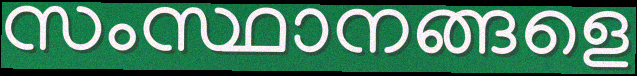
സംസ്ഥാനങ്ങളെ